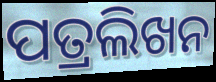
ପତ୍ରଲିଖନ